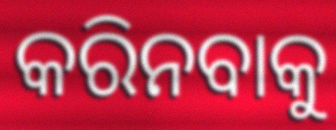
କରିନବାକୁ